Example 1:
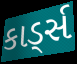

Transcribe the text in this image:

કાર્ડ્સ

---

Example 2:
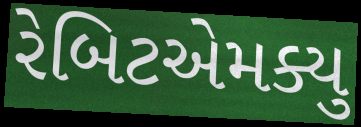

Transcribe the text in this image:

રેબિટએમક્યુ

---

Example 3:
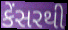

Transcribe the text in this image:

કેંસરથી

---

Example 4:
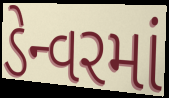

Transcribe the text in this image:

ડેન્વરમાં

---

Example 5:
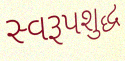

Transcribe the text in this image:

સ્વરૂપશુદ્ધ